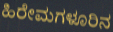
ಹಿರೇಮಗಳೂರಿನ